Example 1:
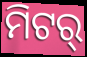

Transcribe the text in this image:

ମିଟର୍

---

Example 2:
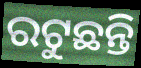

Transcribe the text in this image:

ରଟୁଛନ୍ତି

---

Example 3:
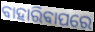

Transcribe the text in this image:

ବାହାରିବାପରେ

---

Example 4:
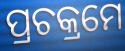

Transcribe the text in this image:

ପ୍ରଚକ୍ରମେ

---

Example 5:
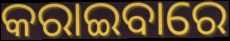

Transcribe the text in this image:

କରାଇବାରେ